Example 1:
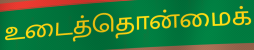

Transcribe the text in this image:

உடைத்தொன்மைக்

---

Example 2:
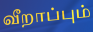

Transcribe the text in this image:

வீறாப்பும்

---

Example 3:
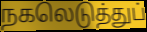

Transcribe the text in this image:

நகலெடுத்துப்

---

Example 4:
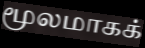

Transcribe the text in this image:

மூலமாகக்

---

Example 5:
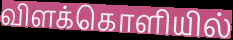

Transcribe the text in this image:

விளக்கொளியில்